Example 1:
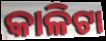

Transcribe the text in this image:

କାଳିଟା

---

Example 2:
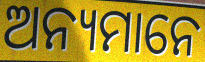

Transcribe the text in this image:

ଅନ୍ଯମାନେ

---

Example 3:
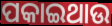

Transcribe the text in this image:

ପକାଇଥାଉ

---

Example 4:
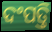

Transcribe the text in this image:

ଦଂପତ୍ତି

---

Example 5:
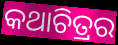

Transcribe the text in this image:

କଥାଚିତ୍ରର